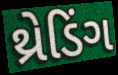
થ્રેડિંગ